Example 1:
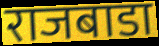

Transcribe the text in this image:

राजबाडा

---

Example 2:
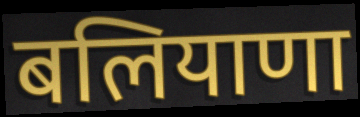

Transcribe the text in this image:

बलियाणा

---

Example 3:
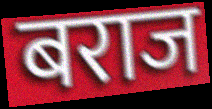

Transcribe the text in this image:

बराज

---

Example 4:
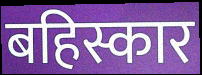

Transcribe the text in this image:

बहिस्कार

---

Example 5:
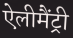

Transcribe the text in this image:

ऐलीमैंट्री